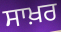
ਸਾਖ਼ਰ